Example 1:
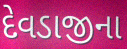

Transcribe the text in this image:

દેવડાજીના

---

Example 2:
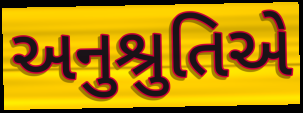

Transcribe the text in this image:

અનુશ્રુતિએ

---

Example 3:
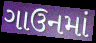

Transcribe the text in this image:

ગાઉનમાં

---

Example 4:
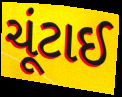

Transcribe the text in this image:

ચૂંટાઈ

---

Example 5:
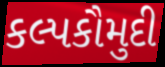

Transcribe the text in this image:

કલ્પકૌમુદી